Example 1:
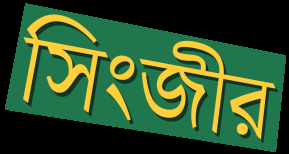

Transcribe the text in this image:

সিংজীর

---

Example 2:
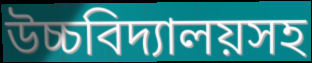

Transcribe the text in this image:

উচ্চবিদ্যালয়সহ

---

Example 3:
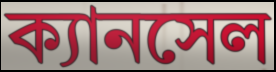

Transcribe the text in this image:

ক্যানসেল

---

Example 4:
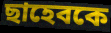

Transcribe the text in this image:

ছাহেবকে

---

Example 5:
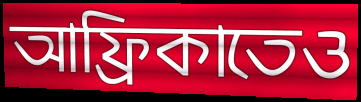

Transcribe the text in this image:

আফ্রিকাতেও